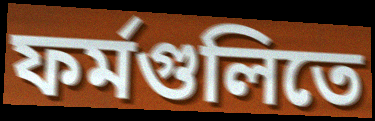
ফর্মগুলিতে